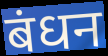
बंधन